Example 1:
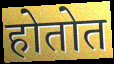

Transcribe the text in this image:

होतोत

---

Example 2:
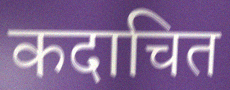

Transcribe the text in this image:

कदाचित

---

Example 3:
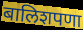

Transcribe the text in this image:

बालिशपणा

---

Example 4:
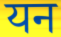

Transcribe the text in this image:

यन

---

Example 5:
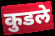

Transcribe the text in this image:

कुडले